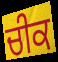
ਚੀਕ